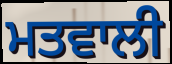
ਮਤਵਾਲੀ